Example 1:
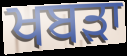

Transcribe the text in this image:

ਖਬੜਾ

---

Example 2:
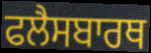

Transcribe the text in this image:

ਫਲੈਸਬਾਰਥ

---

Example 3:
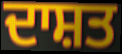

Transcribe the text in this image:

ਦਾਸ਼ਤ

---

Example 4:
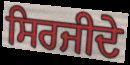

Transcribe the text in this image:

ਸਿਰਜੀਦੇ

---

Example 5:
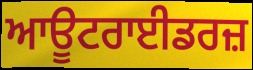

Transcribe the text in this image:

ਆਊਟਰਾਈਡਰਜ਼